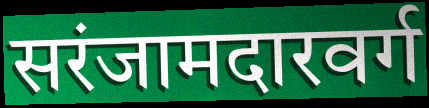
सरंजामदारवर्ग